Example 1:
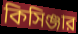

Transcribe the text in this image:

কিসিঞ্জার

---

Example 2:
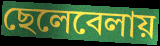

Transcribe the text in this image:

ছেলেবেলায়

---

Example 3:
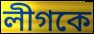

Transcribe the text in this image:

লীগকে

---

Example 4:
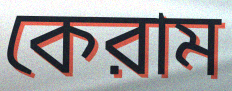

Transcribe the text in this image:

কেরাম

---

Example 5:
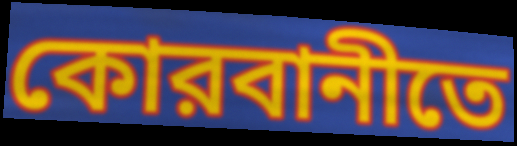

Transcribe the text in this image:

কোরবানীতে